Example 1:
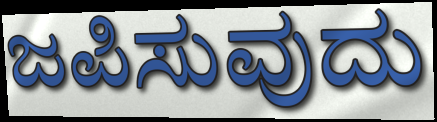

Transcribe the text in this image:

ಜಪಿಸುವುದು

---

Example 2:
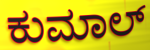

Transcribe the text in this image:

ಕುಮಾಲ್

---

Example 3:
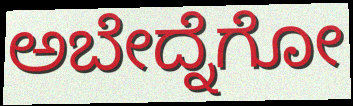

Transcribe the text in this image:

ಅಬೇದ್ನೆಗೋ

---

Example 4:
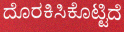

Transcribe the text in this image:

ದೊರಕಿಸಿಕೊಟ್ಟಿದೆ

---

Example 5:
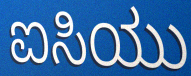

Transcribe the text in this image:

ಐಸಿಯು